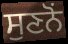
ਸੁਣਨੋਂ